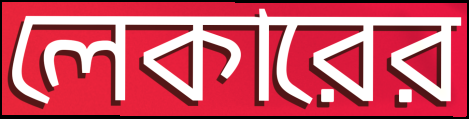
লেকারের